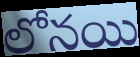
లోనయి